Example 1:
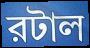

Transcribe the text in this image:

রটাল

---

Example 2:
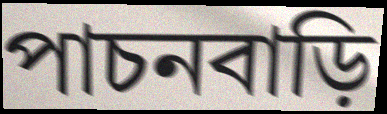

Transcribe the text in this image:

পাচনবাড়ি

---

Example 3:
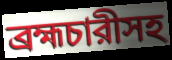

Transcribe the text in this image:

ব্রহ্মচারীসহ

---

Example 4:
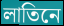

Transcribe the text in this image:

লাতিনে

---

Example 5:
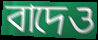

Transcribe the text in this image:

বাদেও